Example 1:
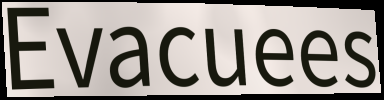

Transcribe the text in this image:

Evacuees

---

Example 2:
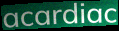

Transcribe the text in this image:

acardiac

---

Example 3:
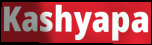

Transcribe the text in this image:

Kashyapa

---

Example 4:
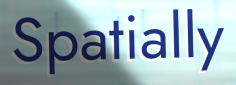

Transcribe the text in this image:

Spatially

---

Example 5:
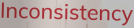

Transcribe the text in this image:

Inconsistency